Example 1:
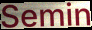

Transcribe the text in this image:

Semin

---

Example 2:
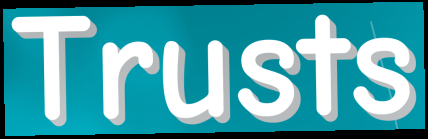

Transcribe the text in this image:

Trusts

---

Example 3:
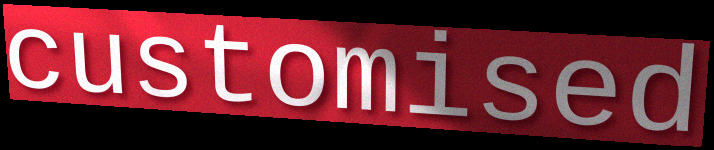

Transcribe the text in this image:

customised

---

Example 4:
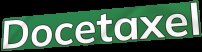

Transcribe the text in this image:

Docetaxel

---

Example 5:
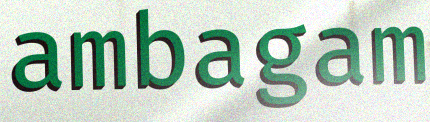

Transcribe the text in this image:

ambagam